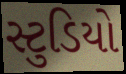
સ્ટુડિયો